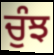
ਚੁੰਝ